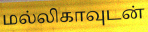
மல்லிகாவுடன்